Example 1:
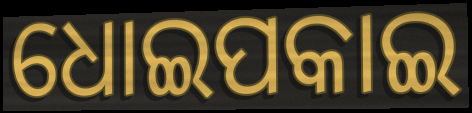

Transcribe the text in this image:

ଧୋଇପକାଇ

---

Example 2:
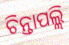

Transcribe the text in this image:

ଚିନ୍ତାପଲ୍ଲି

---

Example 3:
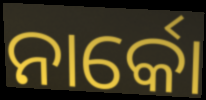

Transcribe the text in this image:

ନାର୍କୋ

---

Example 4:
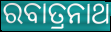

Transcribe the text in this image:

ରବାତ୍ରନାଥ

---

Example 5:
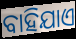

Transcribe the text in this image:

ବାହିଯାଏ